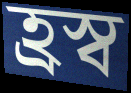
হ্ৰস্ব